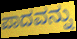
ಪಾದವನ್ನು